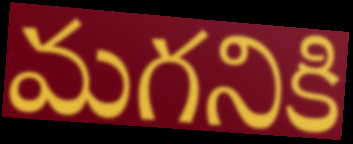
మగనికి